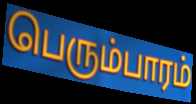
பெரும்பாரம்